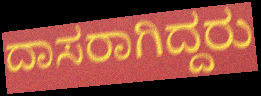
ದಾಸರಾಗಿದ್ದರು